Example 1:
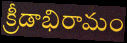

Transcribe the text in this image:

క్రీడాభిరామం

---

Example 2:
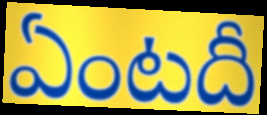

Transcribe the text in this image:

ఏంటదీ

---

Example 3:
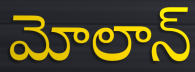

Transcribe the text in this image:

మోలాన్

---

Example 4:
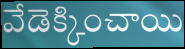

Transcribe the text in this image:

వేడెక్కించాయి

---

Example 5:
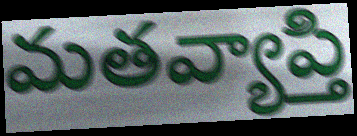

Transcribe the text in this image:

మతవ్యాప్తి